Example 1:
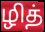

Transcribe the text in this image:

ழித்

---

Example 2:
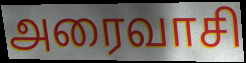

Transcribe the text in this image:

அரைவாசி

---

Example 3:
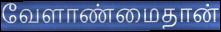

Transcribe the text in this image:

வேளாண்மைதான்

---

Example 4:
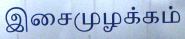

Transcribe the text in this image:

இசைமுழக்கம்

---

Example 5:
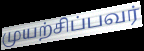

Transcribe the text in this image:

முயற்சிப்பவர்